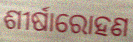
ଶୀର୍ଷାରୋହଣ